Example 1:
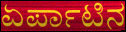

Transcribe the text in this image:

ಏರ್ಪಾಟಿನ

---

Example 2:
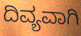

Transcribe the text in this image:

ದಿವ್ಯವಾಗಿ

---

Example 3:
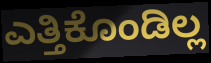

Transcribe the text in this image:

ಎತ್ತಿಕೊಂಡಿಲ್ಲ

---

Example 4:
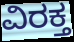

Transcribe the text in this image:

ವಿರಕ್ತ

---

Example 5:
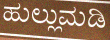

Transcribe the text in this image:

ಹುಲ್ಲುಮಡಿ